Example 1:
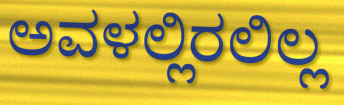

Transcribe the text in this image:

ಅವಳಲ್ಲಿರಲಿಲ್ಲ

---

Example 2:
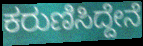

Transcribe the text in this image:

ಕರುಣಿಸಿದ್ದೇನೆ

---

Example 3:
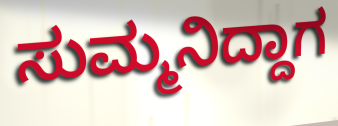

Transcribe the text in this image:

ಸುಮ್ಮನಿದ್ದಾಗ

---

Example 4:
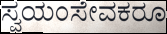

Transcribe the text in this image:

ಸ್ವಯಂಸೇವಕರೂ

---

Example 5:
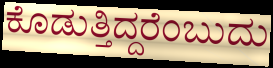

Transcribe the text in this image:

ಕೊಡುತ್ತಿದ್ದರೆಂಬುದು